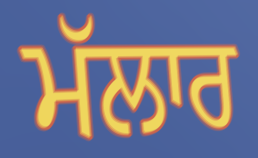
ਮੱਲਾਰ